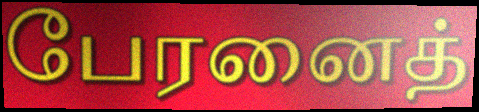
பேரனைத்